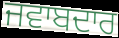
ਜਵਾਬਦਾਰ